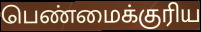
பெண்மைக்குரிய